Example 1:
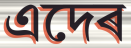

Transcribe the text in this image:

এদেৰ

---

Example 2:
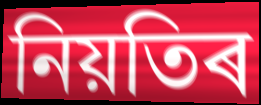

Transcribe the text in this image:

নিয়তিৰ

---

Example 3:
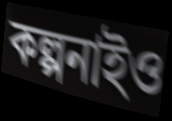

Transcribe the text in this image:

কল্পনাইও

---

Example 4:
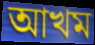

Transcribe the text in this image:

আখম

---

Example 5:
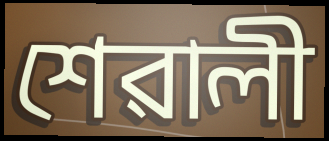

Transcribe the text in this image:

শেৱালী